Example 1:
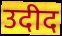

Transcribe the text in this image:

उदीद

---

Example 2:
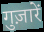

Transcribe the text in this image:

गुज़ारें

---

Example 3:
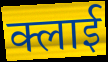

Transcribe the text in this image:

क्लाई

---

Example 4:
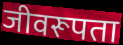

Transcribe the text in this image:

जीवरूपता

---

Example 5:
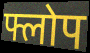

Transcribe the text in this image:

फ्लोप